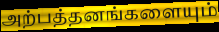
அற்பத்தனங்களையும்